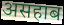
असहाब